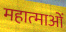
महात्‍माओं